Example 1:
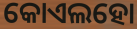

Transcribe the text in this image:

କୋଏଲହୋ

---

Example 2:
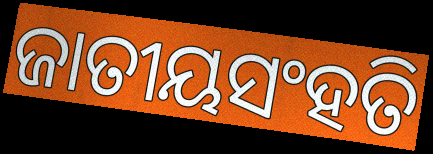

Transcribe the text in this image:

ଜାତୀୟସଂହତି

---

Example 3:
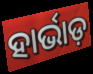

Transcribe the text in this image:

ହାର୍ଭାଡ଼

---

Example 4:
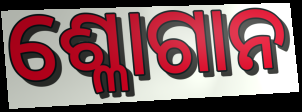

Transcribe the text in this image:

ଶ୍ଳୋଗାନ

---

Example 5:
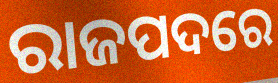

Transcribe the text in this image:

ରାଜପଦରେ